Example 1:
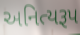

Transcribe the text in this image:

અનિત્યરૂપ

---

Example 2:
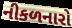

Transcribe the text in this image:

નીકળનારો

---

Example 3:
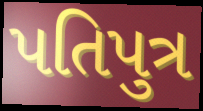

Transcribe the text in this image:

પતિપુત્ર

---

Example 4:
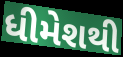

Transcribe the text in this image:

ધીમેશથી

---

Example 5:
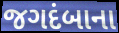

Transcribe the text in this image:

જગદંબાના